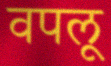
वपलू